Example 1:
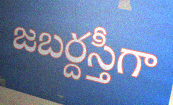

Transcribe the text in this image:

జబర్దస్తీగా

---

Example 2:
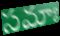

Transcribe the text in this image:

సమాః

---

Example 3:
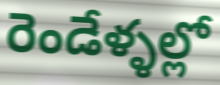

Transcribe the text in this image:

రెండేళ్ళల్లో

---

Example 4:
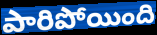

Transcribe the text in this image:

పారిపోయింది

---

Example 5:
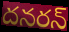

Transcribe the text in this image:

దనరన్